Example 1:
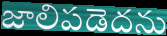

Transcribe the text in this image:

జాలిపడెదను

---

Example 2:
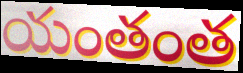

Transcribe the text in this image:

యంతంత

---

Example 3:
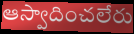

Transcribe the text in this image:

ఆస్వాదించలేరు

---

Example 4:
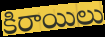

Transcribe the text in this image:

కిరాయిలు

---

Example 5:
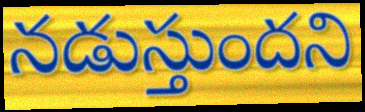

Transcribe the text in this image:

నడుస్తుందని